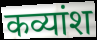
कव्यांश